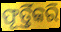
ଫୂର୍ତ୍ତିକରି